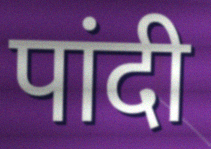
पांदी